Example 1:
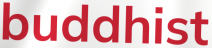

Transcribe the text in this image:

buddhist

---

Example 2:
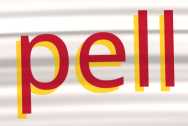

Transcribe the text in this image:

pell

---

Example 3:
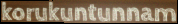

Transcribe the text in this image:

korukuntunnam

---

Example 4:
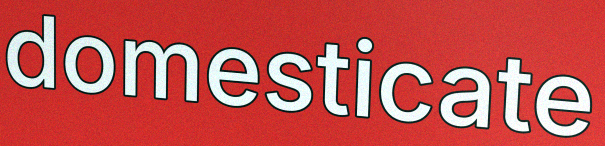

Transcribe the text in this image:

domesticate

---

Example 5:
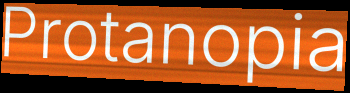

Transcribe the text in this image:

Protanopia